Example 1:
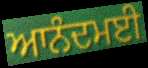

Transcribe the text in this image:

ਆਨੰਦਮਈ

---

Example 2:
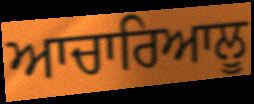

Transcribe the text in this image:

ਆਚਾਰਿਆਲੂ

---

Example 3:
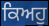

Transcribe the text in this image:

ਕਿਅਹੁ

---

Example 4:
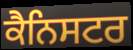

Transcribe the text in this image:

ਕੈਨਿਸਟਰ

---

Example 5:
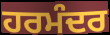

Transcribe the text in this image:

ਹਰਮੰਦਰ